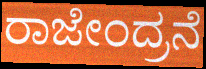
ರಾಜೇಂದ್ರನೆ